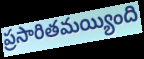
ప్రసారితమయ్యింది